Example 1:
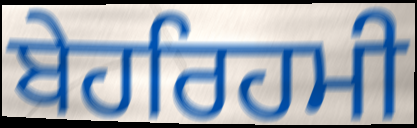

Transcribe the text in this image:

ਬੇਹਰਿਹਮੀ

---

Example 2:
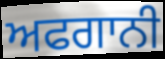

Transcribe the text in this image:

ਅਫਗਾਨੀ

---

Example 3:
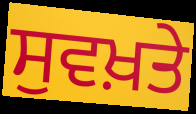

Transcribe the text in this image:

ਸੁਵਖ਼ਤੇ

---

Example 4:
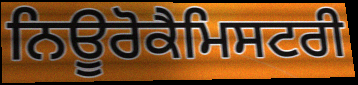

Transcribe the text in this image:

ਨਿਊਰੋਕੈਮਿਸਟਰੀ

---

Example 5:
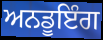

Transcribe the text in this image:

ਅਨਡੂਇੰਗ